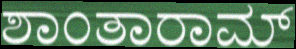
ಶಾಂತಾರಾಮ್